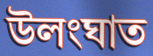
উলংঘাত